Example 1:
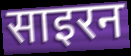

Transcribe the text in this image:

साइरन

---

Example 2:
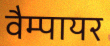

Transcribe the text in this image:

वैम्पायर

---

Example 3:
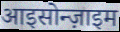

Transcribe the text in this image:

आइसोन्ज़ाइम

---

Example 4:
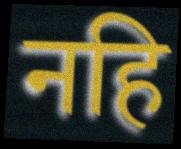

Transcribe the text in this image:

नहि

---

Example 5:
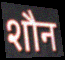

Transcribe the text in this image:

शौन